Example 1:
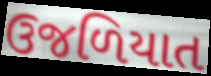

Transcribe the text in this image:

ઉજળિયાત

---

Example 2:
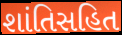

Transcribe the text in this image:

શાંતિસહિત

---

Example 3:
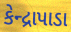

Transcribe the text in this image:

કેન્દ્રાપાડા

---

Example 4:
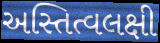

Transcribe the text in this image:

અસ્તિત્વલક્ષી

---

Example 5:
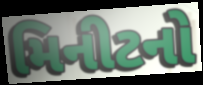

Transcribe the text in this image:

મિનીટનો